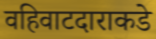
वहिवाटदाराकडे